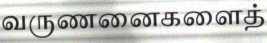
வருணனைகளைத்